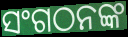
ସଂଗଠନଙ୍କ